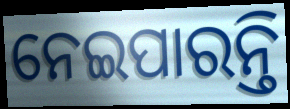
ନେଇପାରନ୍ତି